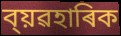
ব্য়ৱহাৰিক